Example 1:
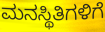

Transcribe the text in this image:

ಮನಸ್ಥಿತಿಗಳಿಗೆ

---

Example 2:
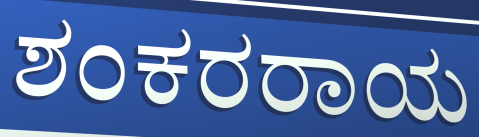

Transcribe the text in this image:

ಶಂಕರರಾಯ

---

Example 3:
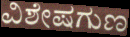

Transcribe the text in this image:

ವಿಶೇಷಗುಣ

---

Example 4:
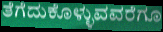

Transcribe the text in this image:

ತೆಗೆದುಕೊಳ್ಳುವವರೆಗೂ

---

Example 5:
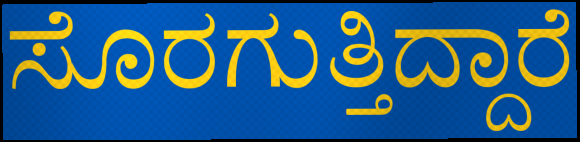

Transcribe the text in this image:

ಸೊರಗುತ್ತಿದ್ದಾರೆ